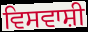
ਵਿਸਵਾਸ਼ੀ